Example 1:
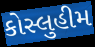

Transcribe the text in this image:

કોસ્લુહીમ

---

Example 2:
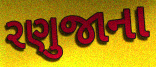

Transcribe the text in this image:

રણુજાના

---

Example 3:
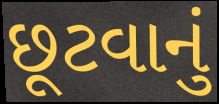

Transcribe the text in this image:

છૂટવાનું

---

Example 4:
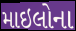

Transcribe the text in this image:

માઇલોના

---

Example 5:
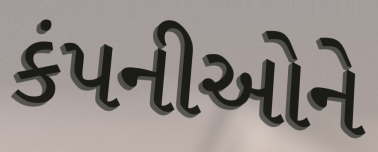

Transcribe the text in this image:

કંપનીઓને